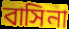
বাসিনা